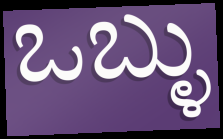
ಒಬ್ಳು